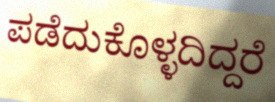
ಪಡೆದುಕೊಳ್ಳದಿದ್ದರೆ